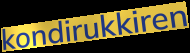
kondirukkiren